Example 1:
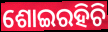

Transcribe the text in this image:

ଶୋଇରହିଚି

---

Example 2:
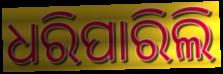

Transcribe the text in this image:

ଧରିପାରିଲି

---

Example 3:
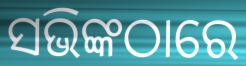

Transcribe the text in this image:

ସଭିଙ୍କଠାରେ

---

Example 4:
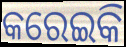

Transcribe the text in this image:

କରେଇକି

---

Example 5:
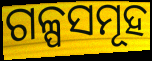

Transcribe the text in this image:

ଗଳ୍ପସମୂହ